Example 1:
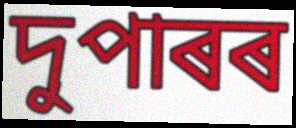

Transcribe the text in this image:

দুপাৰৰ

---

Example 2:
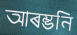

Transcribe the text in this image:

আৰম্ভনি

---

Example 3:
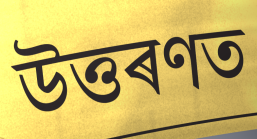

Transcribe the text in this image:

উত্তৰণত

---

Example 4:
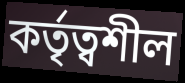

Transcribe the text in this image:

কৰ্তৃত্বশীল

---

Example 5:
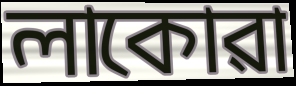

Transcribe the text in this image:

লাকোৱা